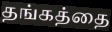
தங்கத்தை